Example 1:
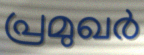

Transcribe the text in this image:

പ്രമുഖർ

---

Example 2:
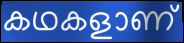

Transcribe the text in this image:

കഥകളാണ്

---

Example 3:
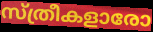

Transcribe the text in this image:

സ്ത്രീകളാരോ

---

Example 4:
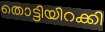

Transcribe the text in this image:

തൊട്ടിയിറക്കി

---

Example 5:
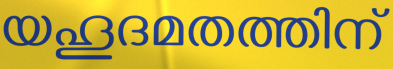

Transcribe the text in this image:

യഹൂദമതത്തിന്